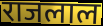
राजलाल